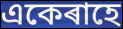
একেৰাহে